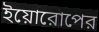
ইয়োরোপের